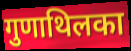
गुणाथिलका